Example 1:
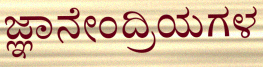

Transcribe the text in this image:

ಜ್ಞಾನೇಂದ್ರಿಯಗಳ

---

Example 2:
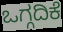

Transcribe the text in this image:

ಒಗ್ಗದಿಕೆ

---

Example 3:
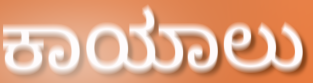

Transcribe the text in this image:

ಕಾಯಾಲು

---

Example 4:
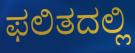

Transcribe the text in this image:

ಫಲಿತದಲ್ಲಿ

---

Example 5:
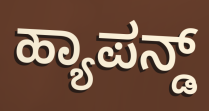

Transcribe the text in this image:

ಹ್ಯಾಪನ್ಡ್